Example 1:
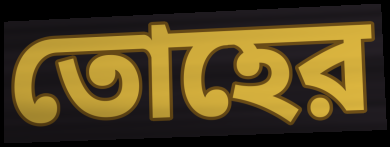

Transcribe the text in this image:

তোহের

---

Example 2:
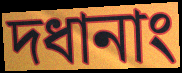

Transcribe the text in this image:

দধানাং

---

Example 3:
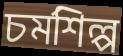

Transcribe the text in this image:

চর্মশিল্প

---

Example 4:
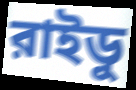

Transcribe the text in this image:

রাইডু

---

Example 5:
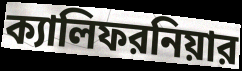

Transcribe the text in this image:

ক্যালিফরনিয়ার